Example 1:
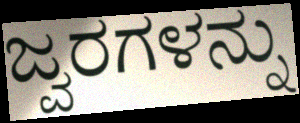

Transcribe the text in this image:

ಜ್ವರಗಳನ್ನು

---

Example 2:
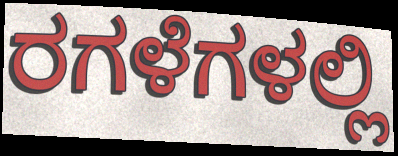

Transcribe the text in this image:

ರಗಳೆಗಳಲ್ಲಿ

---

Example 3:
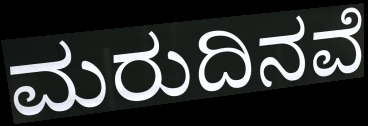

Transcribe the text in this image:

ಮರುದಿನವೆ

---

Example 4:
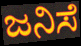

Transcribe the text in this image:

ಜನಿಸೆ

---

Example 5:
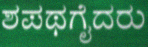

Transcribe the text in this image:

ಶಪಥಗೈದರು